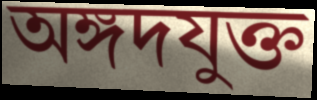
অঙ্গদযুক্ত